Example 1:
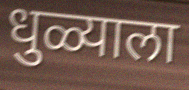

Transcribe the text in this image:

धुळ्याला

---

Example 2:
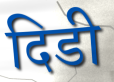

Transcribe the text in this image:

दिडी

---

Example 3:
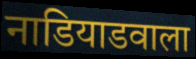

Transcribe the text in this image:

नाडियाडवाला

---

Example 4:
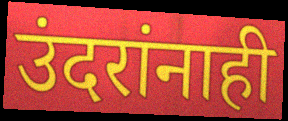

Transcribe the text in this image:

उंदरांनाही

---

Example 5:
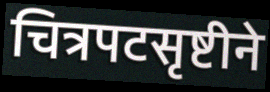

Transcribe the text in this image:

चित्रपटसृष्टीने